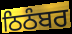
ਠਿਠੰਬਰ